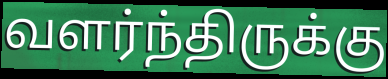
வளர்ந்திருக்கு